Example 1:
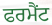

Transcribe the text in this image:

ਫਰਮੈਂਟ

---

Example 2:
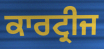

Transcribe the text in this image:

ਕਾਰਟ੍ਰੀਜ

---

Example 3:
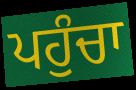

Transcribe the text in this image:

ਪਹੁੰਚਾ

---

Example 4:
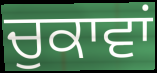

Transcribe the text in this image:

ਚੁਕਾਵਾਂ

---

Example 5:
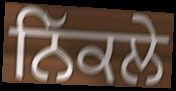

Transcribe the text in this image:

ਨਿੱਕਲੇ